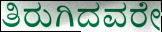
ತಿರುಗಿದವರೇ